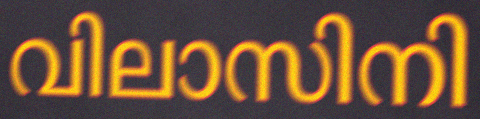
വിലാസിനി